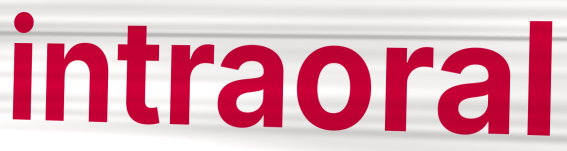
intraoral